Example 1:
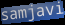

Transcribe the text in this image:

samjavi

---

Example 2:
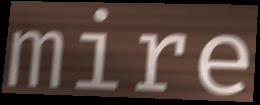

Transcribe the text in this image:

mire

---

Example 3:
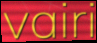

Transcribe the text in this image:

vairi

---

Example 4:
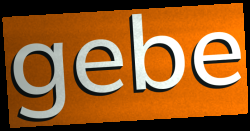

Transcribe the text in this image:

gebe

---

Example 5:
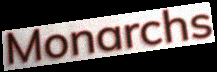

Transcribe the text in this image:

Monarchs